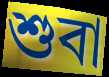
শুবা